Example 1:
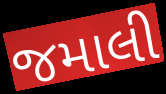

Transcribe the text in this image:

જમાલી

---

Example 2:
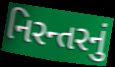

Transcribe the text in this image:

નિરન્તરનું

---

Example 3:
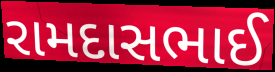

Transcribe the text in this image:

રામદાસભાઈ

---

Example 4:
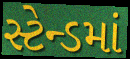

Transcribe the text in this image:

સ્ટેન્ડમાં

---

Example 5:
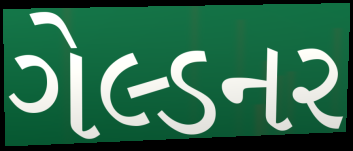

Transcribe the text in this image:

ગેલ્ડનર